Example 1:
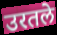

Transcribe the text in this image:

उरतले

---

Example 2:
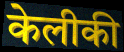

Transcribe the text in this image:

केलीकी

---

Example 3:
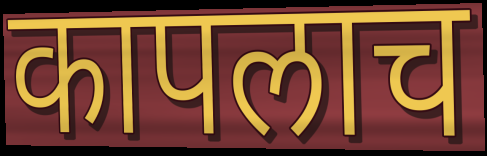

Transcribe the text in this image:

कापलाच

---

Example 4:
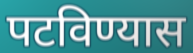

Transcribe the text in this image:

पटविण्यास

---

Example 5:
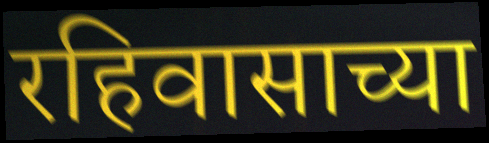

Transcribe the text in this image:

रहिवासाच्या